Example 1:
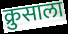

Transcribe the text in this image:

क्रुसाला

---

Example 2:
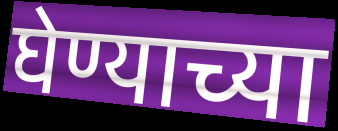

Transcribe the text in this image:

घेण्याच्या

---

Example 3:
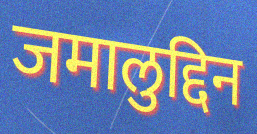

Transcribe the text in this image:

जमालुद्दिन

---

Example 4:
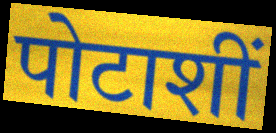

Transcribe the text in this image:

पोटाशीं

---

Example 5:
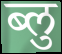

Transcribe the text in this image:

ब्लु